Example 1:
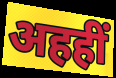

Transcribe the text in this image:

अहहीं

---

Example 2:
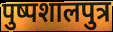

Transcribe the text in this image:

पुष्पशालपुत्र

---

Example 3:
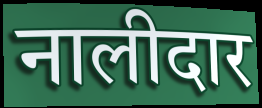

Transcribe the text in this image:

नालीदार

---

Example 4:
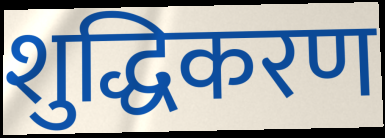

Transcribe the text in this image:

शुद्धिकरण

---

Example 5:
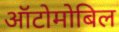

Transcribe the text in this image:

ऑटोमोबिल